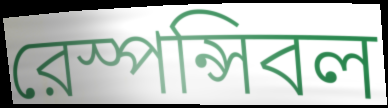
রেস্পন্সিবল